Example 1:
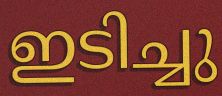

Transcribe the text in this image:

ഇടിച്ചു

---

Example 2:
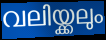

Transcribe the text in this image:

വലിയ്ക്കലും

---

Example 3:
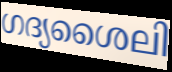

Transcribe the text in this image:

ഗദ്യശൈലി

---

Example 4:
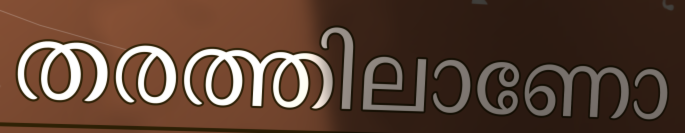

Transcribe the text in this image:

തരത്തിലാണോ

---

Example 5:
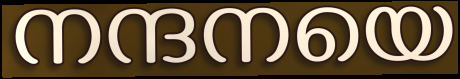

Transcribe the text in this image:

നന്ദനയെ